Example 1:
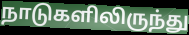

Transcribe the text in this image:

நாடுகளிலிருந்து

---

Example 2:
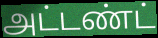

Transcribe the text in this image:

அட்டண்ட்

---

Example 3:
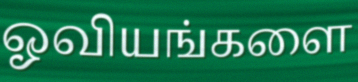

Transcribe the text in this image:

ஓவியங்களை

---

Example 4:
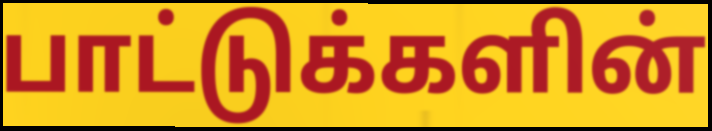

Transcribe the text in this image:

பாட்டுக்களின்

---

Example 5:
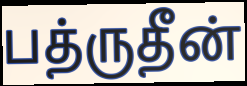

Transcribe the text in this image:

பத்ருதீன்